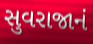
સુવરાજાનં